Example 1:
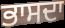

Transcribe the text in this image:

ਭਾਸਦਾ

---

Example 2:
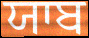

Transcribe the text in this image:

ਯਾਬ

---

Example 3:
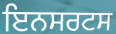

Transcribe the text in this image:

ਇਨਸਰਟਸ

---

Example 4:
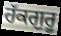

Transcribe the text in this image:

ਹੱਕਗੁਰੂ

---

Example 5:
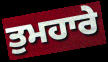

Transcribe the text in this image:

ਤੁਮਹਾਰੇ